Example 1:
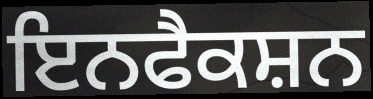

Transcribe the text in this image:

ਇਨਫੈਕਸ਼ਨ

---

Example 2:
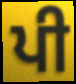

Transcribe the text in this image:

ਪੀ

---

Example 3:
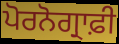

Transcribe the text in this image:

ਪੋਰਨੋਗ੍ਰਾਫ਼ੀ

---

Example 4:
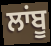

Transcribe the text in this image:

ਲਾਂਬੂ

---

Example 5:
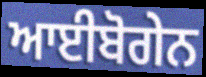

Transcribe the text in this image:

ਆਈਬੋਗੇਨ